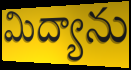
మిద్యాను